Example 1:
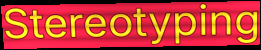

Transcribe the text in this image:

Stereotyping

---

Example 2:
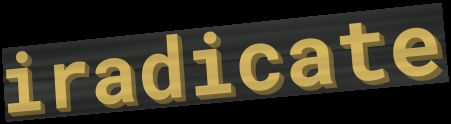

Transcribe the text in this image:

iradicate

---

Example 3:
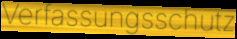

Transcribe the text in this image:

Verfassungsschutz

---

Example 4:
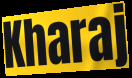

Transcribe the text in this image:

Kharaj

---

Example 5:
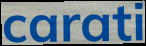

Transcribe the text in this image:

carati